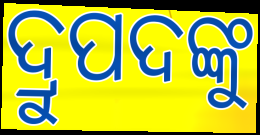
ଦ୍ରୁପଦଙ୍କୁ